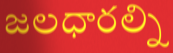
జలధారల్ని